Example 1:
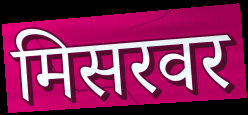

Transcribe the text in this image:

मिसरवर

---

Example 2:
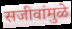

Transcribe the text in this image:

सजीवांमुळे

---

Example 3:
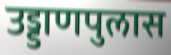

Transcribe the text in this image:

उड्डाणपुलास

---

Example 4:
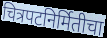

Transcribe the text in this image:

चित्रपटनिर्मितीचा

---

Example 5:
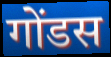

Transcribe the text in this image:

गोंडस